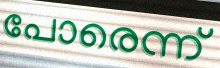
പോരെന്ന്